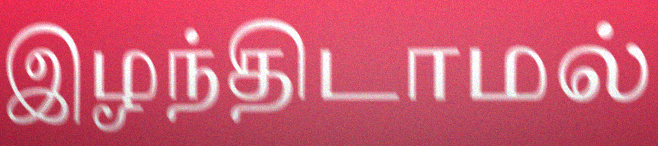
இழந்திடாமல்